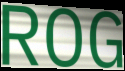
ROG